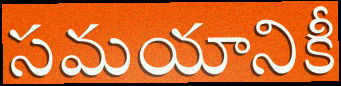
సమయానికీ